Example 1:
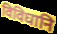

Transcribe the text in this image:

विविधानि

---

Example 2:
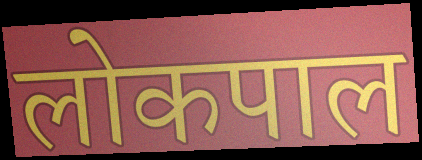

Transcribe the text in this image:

लोकपाल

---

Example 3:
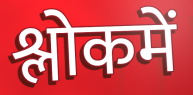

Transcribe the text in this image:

श्लोकमें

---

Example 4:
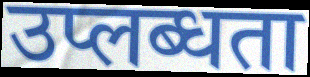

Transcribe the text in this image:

उप्लब्धता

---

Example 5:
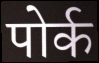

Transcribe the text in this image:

पोर्क